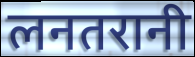
लनतरानी